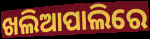
ଖଲିଆପାଲିରେ